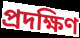
প্ৰদক্ষিণ